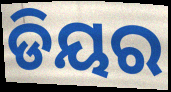
ଡିୟର